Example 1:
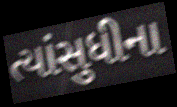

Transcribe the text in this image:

ત્યાંસુધીના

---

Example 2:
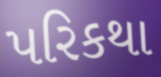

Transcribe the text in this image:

પરિકથા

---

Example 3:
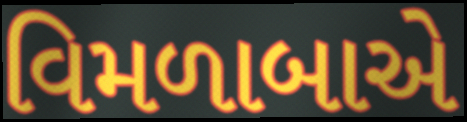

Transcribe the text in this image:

વિમળાબાએ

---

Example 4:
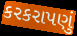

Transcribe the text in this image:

કરકરાપણું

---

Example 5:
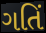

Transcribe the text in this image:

ગતિં